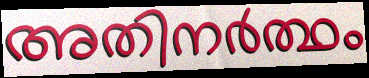
അതിനർത്ഥം